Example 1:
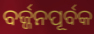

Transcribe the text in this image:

ବର୍ଜ୍ଜନପୂର୍ବକ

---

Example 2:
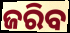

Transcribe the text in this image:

ଜରିବ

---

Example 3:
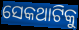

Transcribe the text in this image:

ସେକଥାଟିକୁ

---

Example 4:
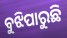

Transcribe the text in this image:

ବୁଝିପାରୁଛି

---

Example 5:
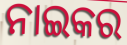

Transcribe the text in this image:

ନାଇକର